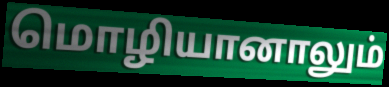
மொழியானாலும்